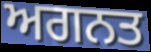
ਅਗਨਤ